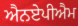
ਐਨਏਪੀਐਮ